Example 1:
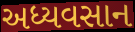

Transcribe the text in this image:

અધ્યવસાન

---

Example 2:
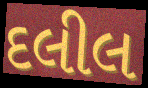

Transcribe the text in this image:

દલીલ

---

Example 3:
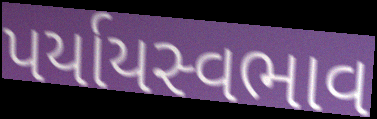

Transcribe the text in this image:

પર્યાયસ્વભાવ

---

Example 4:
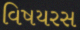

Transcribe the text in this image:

વિષયરસ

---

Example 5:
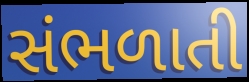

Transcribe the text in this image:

સંભળાતી